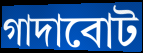
গাদাবোট